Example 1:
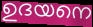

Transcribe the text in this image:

ഉദയനെ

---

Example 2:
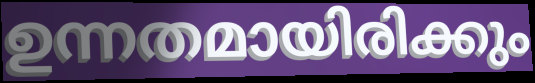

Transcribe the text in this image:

ഉന്നതമായിരിക്കും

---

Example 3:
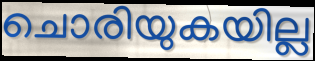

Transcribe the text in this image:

ചൊരിയുകയില്ല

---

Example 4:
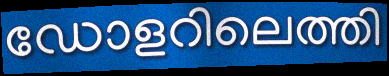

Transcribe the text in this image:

ഡോളറിലെത്തി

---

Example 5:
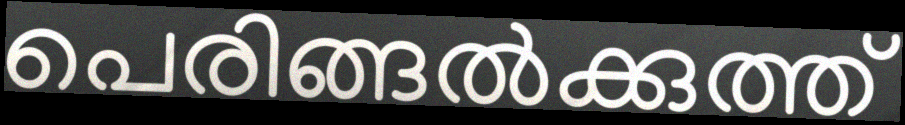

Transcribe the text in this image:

പെരിങ്ങൽക്കുത്ത്